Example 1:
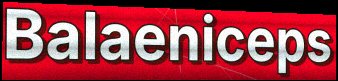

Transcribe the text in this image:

Balaeniceps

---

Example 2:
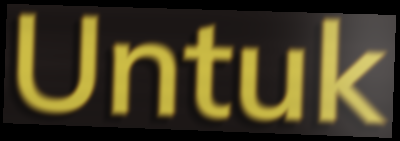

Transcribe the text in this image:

Untuk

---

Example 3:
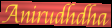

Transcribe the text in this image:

Anirudhdha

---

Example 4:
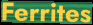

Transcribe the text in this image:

Ferrites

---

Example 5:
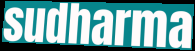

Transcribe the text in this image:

sudharma